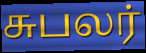
சுபலர்